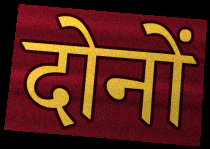
दोनों